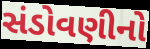
સંડોવણીનો